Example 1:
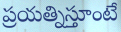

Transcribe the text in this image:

ప్రయత్నిస్తూంటే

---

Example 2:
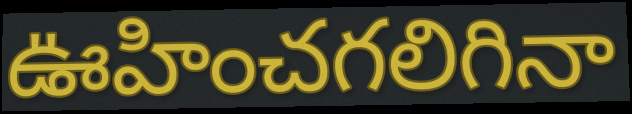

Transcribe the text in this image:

ఊహించగలిగినా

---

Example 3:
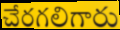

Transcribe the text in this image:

చేరగలిగారు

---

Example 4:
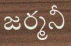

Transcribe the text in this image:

జర్మనీ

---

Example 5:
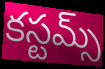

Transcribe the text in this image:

కస్టమ్స్